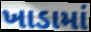
ખાડામાં